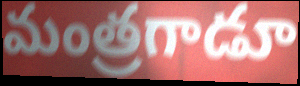
మంత్రగాడూ